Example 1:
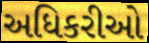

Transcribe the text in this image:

અધિકરીઓ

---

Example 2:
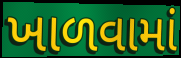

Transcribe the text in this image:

ખાળવામાં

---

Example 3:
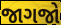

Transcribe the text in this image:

જાગજો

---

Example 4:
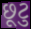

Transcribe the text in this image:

છૂટુ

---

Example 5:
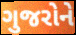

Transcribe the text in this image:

ગુજરોને